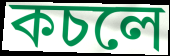
কচলে